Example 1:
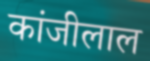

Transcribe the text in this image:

कांजीलाल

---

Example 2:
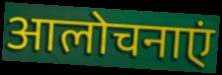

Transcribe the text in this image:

आलोचनाएं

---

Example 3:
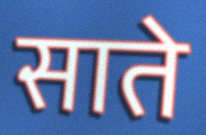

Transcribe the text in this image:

साते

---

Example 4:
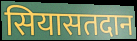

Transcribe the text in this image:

सियासतदान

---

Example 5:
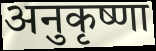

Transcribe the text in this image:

अनुकृष्णा